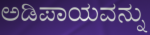
ಅಡಿಪಾಯವನ್ನು